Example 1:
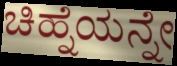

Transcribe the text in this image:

ಚಿಹ್ನೆಯನ್ನೇ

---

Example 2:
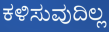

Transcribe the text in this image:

ಕಳಿಸುವುದಿಲ್ಲ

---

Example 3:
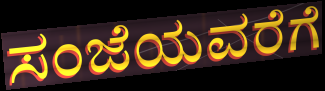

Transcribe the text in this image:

ಸಂಜೆಯವರೆಗೆ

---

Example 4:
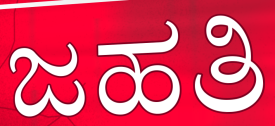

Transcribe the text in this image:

ಜಹತಿ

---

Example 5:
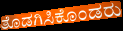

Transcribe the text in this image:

ತೊಡಗಿಸಿಕೊಂಡರು